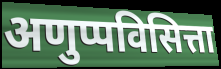
अणुप्पविसित्ता